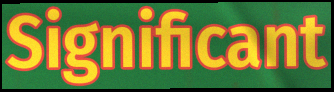
Significant